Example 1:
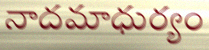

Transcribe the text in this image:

నాదమాధుర్యం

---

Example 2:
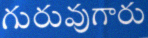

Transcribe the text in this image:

గురువుగారు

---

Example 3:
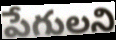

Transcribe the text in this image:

పేగులని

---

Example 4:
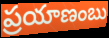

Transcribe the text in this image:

ప్రయాణంబు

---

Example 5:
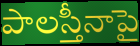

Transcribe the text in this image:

పాలస్తీనాపై